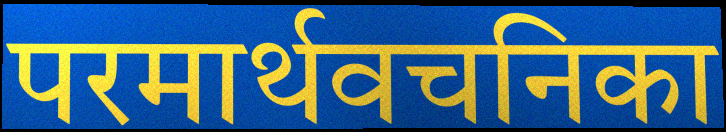
परमार्थवचनिका